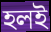
হলই